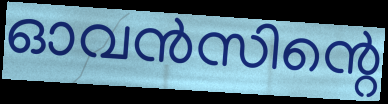
ഓവൻസിന്റെ